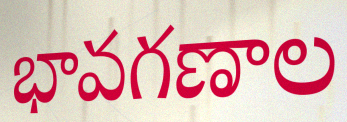
భావగణాల